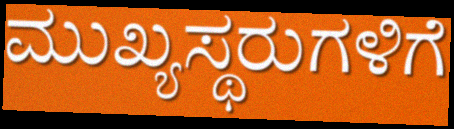
ಮುಖ್ಯಸ್ಥರುಗಳಿಗೆ